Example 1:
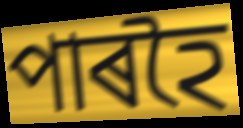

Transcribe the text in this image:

পাৰহৈ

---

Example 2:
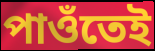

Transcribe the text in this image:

পাওঁতেই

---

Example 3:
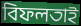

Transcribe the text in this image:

বিফলতাই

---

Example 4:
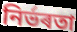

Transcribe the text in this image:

নিৰ্ভৰতা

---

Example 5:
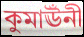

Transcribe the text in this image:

কুমাঊঁনী